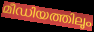
മീഡിയത്തിലും